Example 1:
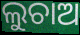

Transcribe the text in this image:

ଲୁଚାଅ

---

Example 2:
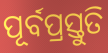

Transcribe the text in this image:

ପୂର୍ବପ୍ରସ୍ତୁତି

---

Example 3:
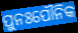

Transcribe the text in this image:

ପୁନଃପୌନିକ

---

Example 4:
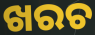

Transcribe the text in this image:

ଖରଚ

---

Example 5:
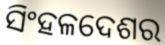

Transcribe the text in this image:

ସିଂହଳଦେଶର